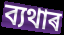
ব্যথাৰ